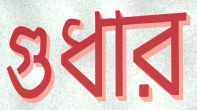
গুধার